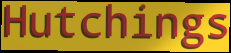
Hutchings